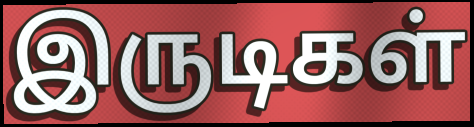
இருடிகள்